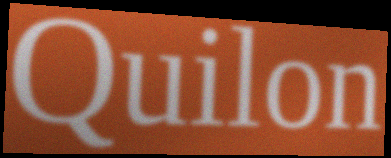
Quilon